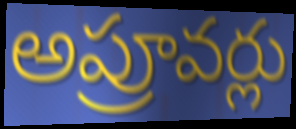
అప్రూవర్లు